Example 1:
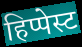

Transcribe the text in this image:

हिप्पेस्ट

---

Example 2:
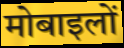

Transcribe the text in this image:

मोबाइलों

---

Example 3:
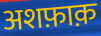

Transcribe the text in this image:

अशफ़ाक़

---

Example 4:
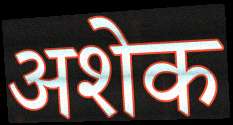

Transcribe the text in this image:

अशेक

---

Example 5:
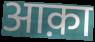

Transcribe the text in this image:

आक़ा